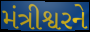
મંત્રીશ્વરને